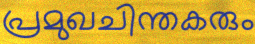
പ്രമുഖചിന്തകരും